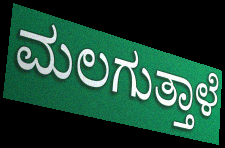
ಮಲಗುತ್ತಾಳೆ